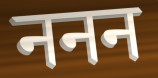
ननन